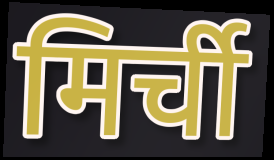
मिर्ची